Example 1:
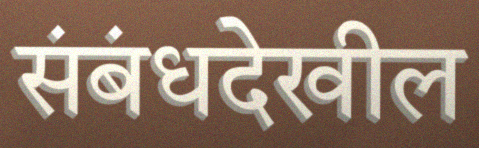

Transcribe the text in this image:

संबंधदेखील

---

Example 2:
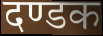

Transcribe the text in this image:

दण्डक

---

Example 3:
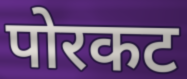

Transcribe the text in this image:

पोरकट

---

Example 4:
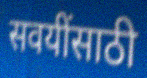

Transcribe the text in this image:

सवयींसाठी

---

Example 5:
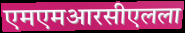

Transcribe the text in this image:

एमएमआरसीएलला